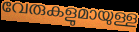
വേരുകളുമായുള്ള